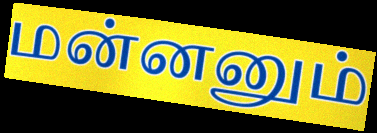
மன்னனும்